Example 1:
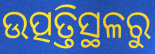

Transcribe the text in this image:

ଉତ୍ପତ୍ତିସ୍ଥଳରୁ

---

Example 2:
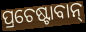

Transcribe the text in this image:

ପ୍ରଚେଷ୍ଟାବାନ୍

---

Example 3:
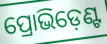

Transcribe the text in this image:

ପ୍ରୋଭିଡ଼େଣ୍ଟ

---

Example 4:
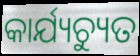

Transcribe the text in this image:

କାର୍ଯ୍ୟଚ୍ୟୁତ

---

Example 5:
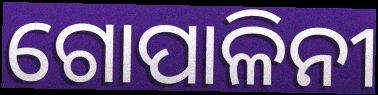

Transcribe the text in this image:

ଗୋପାଳିନୀ